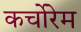
कर्चोरेम